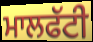
ਮਾਲਫੱਟੀ